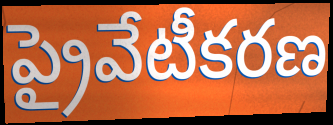
ప్రైవేటీకరణ